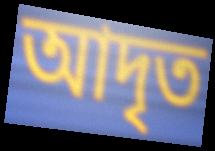
আদৃত